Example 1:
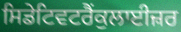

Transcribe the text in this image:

ਸਿਡੇਟਿਵਟਰੈਂਕੁਲਾਈਜ਼ਰ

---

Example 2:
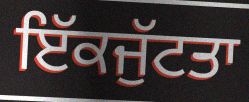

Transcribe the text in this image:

ਇੱਕਜੁੱਟਤਾ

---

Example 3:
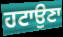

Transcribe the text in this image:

ਹਟਾਉਣਾ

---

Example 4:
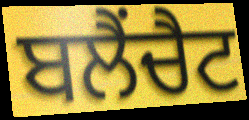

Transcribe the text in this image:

ਬਲੈਂਚੈਟ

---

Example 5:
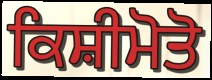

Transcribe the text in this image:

ਕਿਸ਼ੀਮੋਤੋ